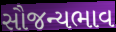
સૌજન્યભાવ